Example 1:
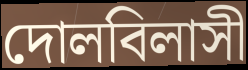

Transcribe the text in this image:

দোলবিলাসী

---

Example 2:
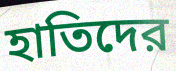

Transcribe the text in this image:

হাতিদের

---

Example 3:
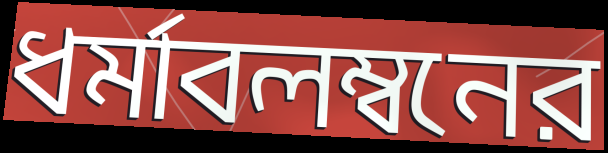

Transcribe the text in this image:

ধর্মাবলম্বনের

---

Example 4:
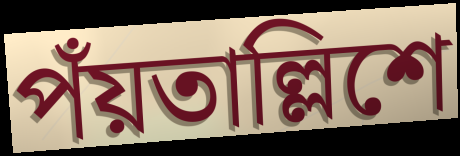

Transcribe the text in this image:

পঁয়তাল্লিশে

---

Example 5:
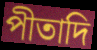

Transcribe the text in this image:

পীতাদি